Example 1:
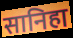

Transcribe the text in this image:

सानिहा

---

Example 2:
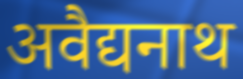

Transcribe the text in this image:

अवैद्यनाथ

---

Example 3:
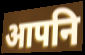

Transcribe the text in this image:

आपनि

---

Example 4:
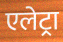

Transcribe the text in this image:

एलेट्रा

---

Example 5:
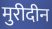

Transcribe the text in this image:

मुरीदीन